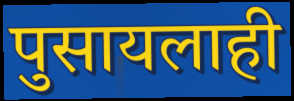
पुसायलाही